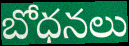
బోధనలు